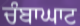
ਚੰਬਾਘਾਟ